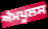
ਐਮਪੂਲਸ